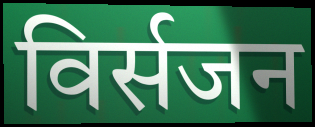
विर्सजन